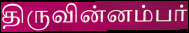
திருவின்னம்பர்